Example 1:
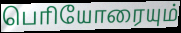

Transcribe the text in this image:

பெரியோரையும்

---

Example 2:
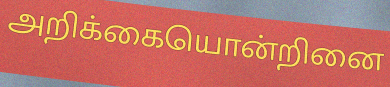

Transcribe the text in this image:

அறிக்கையொன்றினை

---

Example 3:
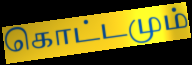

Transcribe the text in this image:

கொட்டமும்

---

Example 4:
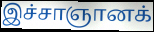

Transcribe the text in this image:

இச்சாஞானக்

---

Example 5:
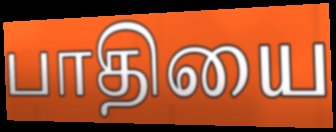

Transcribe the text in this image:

பாதியை